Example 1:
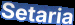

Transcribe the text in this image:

Setaria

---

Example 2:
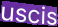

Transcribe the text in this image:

uscis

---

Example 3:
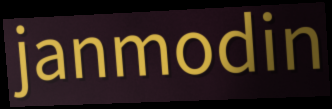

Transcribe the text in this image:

janmodin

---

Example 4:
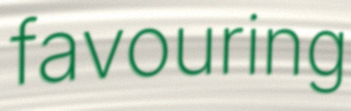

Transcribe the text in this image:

favouring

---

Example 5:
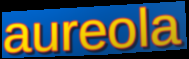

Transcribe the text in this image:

aureola